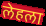
लेहला